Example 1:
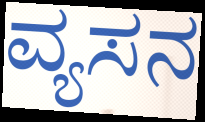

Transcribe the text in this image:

ವ್ಯಸನ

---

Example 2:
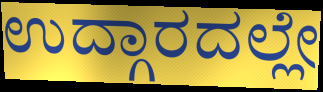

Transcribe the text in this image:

ಉದ್ಗಾರದಲ್ಲೇ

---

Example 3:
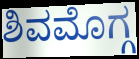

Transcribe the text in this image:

ಶಿವಮೊಗ್ಗ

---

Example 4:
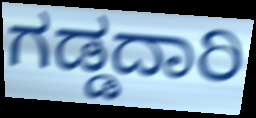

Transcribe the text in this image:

ಗಡ್ಡದಾರಿ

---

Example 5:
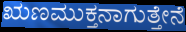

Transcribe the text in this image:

ಋಣಮುಕ್ತನಾಗುತ್ತೇನೆ